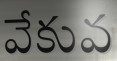
వేకువ